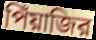
পিঁয়াজির